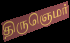
திருஞெமர்